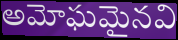
అమోఘమైనవి